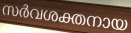
സർവശക്തനായ